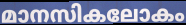
മാനസികലോകം